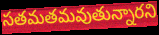
సతమతమవుతున్నారని